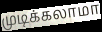
முடிக்கலாமா